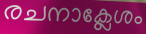
രചനാക്ലേശം